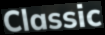
Classic